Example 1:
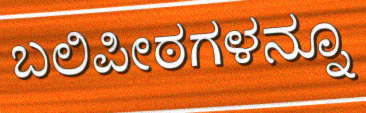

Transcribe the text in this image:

ಬಲಿಪೀಠಗಳನ್ನೂ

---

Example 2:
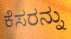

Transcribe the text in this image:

ಕೆಸರನ್ನು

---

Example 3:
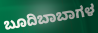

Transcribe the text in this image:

ಬೂದಿಬಾಬಾಗಳ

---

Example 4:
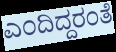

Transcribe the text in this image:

ಎಂದಿದ್ದರಂತೆ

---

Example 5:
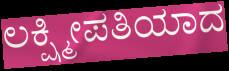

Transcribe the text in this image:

ಲಕ್ಷ್ಮೀಪತಿಯಾದ